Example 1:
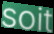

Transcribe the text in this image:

soit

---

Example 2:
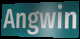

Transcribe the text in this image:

Angwin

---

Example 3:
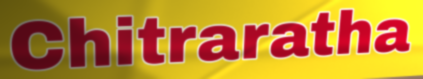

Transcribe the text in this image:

Chitraratha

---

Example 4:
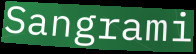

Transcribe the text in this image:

Sangrami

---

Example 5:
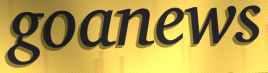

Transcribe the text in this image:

goanews